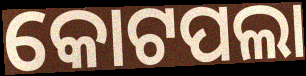
କୋଟପଲା